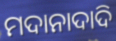
ମଦାନାଦାଦି